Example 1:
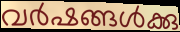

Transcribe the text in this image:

വർഷങ്ങൾക്കു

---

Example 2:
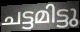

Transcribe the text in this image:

ചട്ടമിട്ടു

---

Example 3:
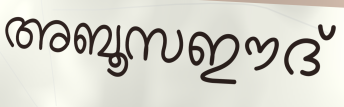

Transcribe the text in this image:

അബൂസഈദ്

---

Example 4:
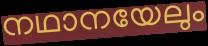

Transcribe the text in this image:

നഥാനയേലും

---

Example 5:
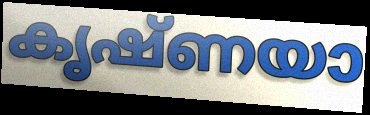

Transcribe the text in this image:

കൃഷ്ണയാ